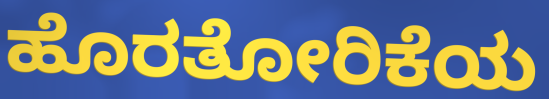
ಹೊರತೋರಿಕೆಯ